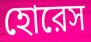
হোরেস